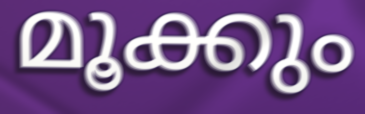
മൂക്കും